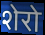
शेरो